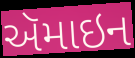
ઍમાઇન